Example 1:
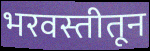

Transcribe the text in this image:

भरवस्तीतून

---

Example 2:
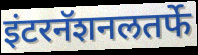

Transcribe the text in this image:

इंटरनॅशनलतर्फे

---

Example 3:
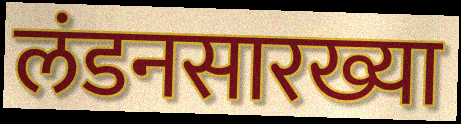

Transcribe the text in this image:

लंडनसारख्या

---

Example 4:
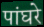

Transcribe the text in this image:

पांघरे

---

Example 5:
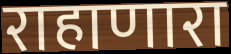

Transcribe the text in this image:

राहाणारा